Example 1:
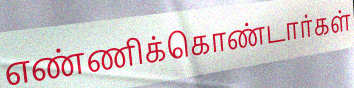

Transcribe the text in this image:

எண்ணிக்கொண்டார்கள்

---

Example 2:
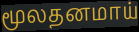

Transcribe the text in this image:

மூலதனமாய்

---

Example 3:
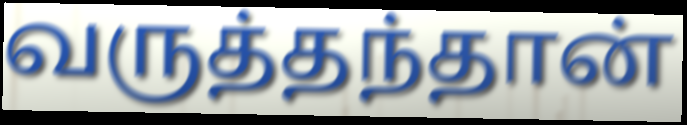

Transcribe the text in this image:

வருத்தந்தான்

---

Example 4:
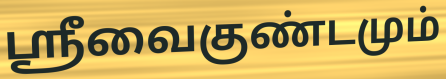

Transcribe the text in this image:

ஸ்ரீவைகுண்டமும்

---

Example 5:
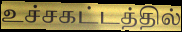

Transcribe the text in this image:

உச்சகட்டத்தில்